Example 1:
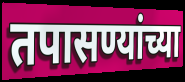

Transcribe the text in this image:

तपासण्यांच्या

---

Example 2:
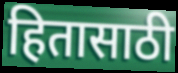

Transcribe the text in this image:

हितासाठी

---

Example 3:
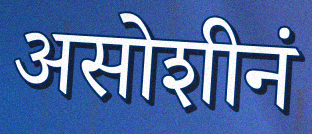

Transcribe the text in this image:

असोशीनं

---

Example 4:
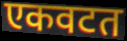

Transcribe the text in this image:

एकवटत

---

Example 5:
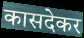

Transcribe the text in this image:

कासदेकर